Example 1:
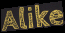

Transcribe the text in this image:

Alike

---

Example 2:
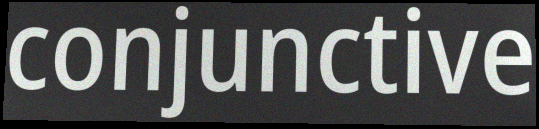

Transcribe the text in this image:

conjunctive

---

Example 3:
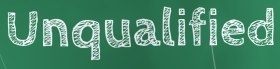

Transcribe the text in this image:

Unqualified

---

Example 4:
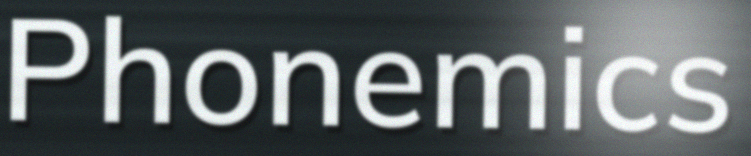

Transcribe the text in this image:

Phonemics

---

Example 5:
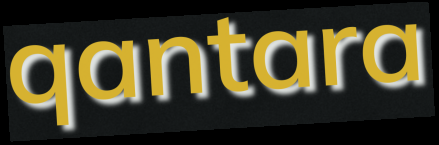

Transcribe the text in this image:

qantara